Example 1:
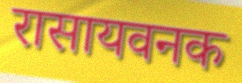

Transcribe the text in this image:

रासायवनक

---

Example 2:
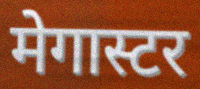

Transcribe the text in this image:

मेगास्टर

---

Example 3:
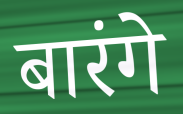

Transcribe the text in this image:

बारंगे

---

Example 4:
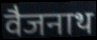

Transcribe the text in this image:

वैजनाथ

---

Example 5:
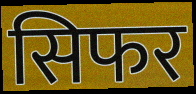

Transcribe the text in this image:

सिफर